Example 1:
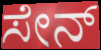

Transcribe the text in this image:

ಸೇನ್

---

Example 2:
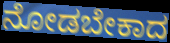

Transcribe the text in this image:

ನೋಡಬೇಕಾದ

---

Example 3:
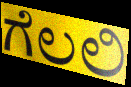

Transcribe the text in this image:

ಗೆಲಲಿ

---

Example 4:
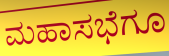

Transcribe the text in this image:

ಮಹಾಸಭೆಗೂ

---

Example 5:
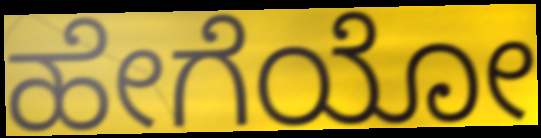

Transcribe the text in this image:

ಹೇಗೆಯೋ